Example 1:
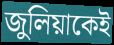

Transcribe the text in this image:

জুলিয়াকেই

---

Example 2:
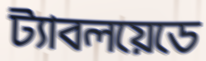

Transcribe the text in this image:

ট্যাবলয়েডে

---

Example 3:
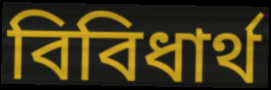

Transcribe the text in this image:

বিবিধার্থ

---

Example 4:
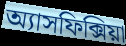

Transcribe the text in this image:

অ্যাসফিক্সিয়া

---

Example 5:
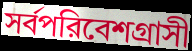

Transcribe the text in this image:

সর্বপরিবেশগ্রাসী